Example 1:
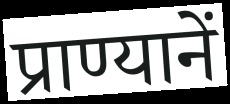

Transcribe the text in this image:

प्राण्यानें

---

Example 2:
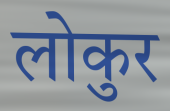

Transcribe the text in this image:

लोकुर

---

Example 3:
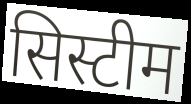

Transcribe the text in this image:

सिस्टीम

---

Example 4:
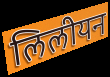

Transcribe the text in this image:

लिलीयन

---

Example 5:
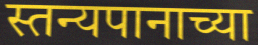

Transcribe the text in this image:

स्तन्यपानाच्या